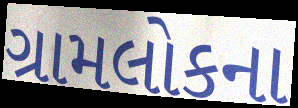
ગ્રામલોકના